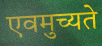
एवमुच्यते